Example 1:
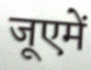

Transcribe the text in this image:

जूएमें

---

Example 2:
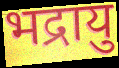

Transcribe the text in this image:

भद्रायु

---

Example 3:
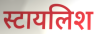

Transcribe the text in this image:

स्टायलिश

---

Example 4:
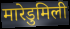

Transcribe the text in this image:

मारेडुमिली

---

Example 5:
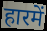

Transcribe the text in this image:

हारमें